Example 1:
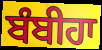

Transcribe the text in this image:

ਬੰਬੀਹਾ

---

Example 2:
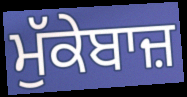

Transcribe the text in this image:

ਮੁੱਕੇਬਾਜ਼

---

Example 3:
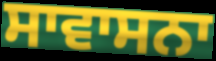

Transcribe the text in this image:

ਸਾਵਾਸਨਾ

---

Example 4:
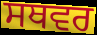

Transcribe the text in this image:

ਸਥਵਰ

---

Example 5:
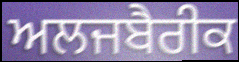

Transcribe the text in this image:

ਅਲਜਬੈਰੀਕ